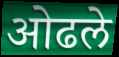
ओढले